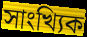
সাংখ্যিক